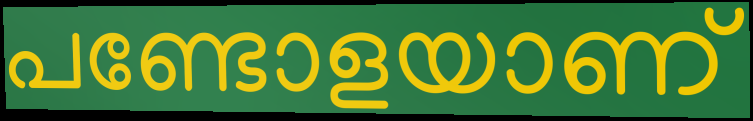
പണ്ടോളയാണ്